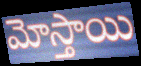
మోస్తాయి